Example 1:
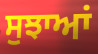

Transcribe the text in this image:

ਸੁਝਾਆਂ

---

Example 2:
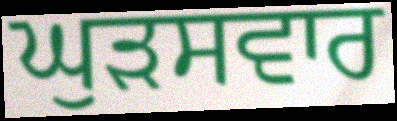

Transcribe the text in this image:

ਘੁੜਸਵਾਰ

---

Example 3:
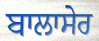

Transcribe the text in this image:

ਬਾਲਾਸੇਰ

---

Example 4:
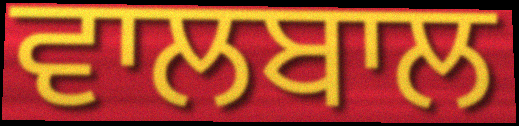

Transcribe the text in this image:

ਵਾਲਬਾਲ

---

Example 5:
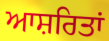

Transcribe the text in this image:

ਆਸ਼ਰਿਤਾਂ